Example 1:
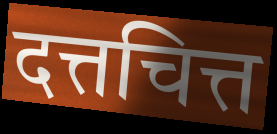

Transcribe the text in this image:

दत्तचित्त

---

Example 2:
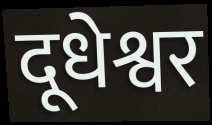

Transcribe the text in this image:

दूधेश्वर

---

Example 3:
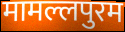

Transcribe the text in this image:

मामल्लपुरम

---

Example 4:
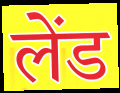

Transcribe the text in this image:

लेंड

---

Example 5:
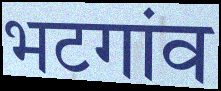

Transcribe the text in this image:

भटगांव